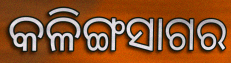
କଳିଙ୍ଗସାଗର